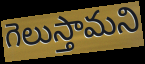
గెలుస్తామని